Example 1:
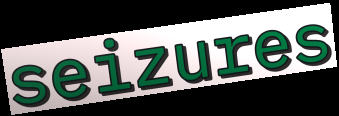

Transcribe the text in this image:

seizures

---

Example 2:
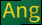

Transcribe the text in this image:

Ang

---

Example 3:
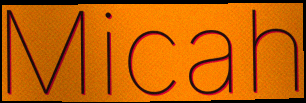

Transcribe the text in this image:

Micah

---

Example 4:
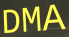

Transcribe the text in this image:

DMA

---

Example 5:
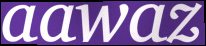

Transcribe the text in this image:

aawaz